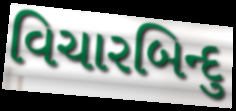
વિચારબિન્દુ